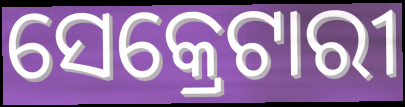
ସେକ୍ରେଟାରୀ